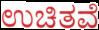
ಉಚಿತವೆ